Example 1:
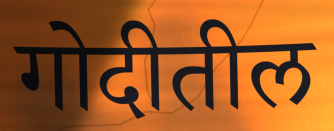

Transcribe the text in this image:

गोदीतील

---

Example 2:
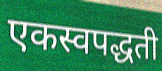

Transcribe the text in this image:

एकस्वपद्धती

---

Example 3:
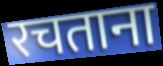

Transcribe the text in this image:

रचताना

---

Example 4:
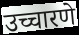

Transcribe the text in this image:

उच्चारणे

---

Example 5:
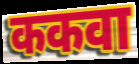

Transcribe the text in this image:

ककवा